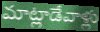
మాట్లాడేవాళ్లు